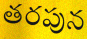
తరపున